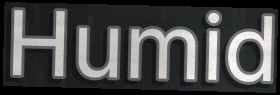
Humid